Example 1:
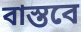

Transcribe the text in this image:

বাস্তবে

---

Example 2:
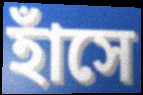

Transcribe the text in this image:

হাঁসে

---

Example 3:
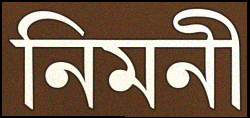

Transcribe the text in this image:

নিমনী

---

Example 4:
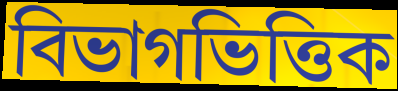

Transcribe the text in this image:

বিভাগভিত্তিক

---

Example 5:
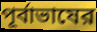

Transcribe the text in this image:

পূর্বাভাষের